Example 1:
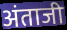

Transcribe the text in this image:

अंताजी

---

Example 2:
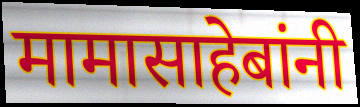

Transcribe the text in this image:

मामासाहेबांनी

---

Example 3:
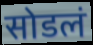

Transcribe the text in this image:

सोडलं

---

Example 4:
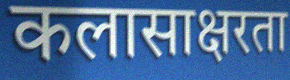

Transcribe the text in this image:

कलासाक्षरता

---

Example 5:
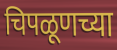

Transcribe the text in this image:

चिपळूणच्या